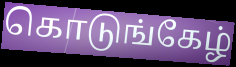
கொடுங்கேழ்